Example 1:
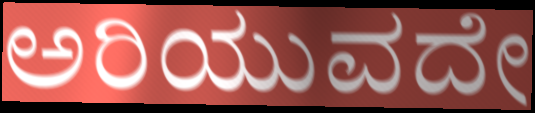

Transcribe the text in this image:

ಅರಿಯುವದೇ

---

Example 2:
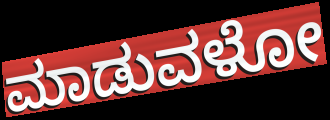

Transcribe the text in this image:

ಮಾಡುವಳೋ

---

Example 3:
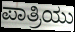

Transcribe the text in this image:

ಪಾತ್ರಿಯು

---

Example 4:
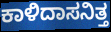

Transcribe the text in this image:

ಕಾಳಿದಾಸನಿತ್ತ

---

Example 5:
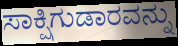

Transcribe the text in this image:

ಸಾಕ್ಷಿಗುಡಾರವನ್ನು